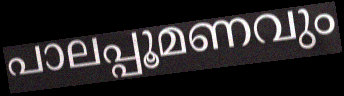
പാലപ്പൂമണവും